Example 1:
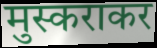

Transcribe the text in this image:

मुस्कराकर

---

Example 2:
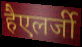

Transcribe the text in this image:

हैएलर्जी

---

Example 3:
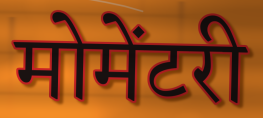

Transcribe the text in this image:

मोमेंटरी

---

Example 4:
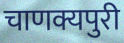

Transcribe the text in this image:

चाणक्यपुरी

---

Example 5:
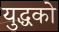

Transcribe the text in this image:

युद्धको